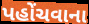
પહોંચવાના